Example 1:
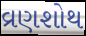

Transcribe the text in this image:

વ્રણશોથ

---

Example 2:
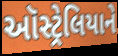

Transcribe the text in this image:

ઑસ્ટ્રેલિયાને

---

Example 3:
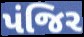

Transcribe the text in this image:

પંજિર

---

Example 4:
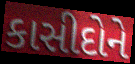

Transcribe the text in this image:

કાસીદોને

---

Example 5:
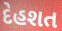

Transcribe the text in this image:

દેહશત